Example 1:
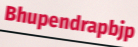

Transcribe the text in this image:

Bhupendrapbjp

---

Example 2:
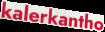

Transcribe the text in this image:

kalerkantho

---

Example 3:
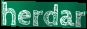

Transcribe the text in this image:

herdar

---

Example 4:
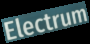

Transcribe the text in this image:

Electrum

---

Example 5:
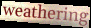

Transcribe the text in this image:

weathering